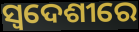
ସ୍ୱଦେଶୀରେ